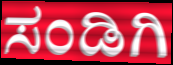
ಸಂಡಿಗಿ